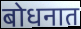
बोधनात